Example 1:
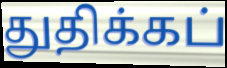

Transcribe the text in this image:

துதிக்கப்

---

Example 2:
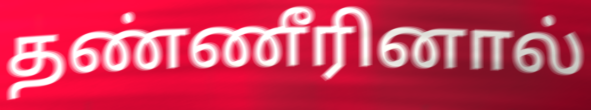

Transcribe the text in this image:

தண்ணீரினால்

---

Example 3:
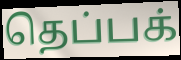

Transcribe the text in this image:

தெப்பக்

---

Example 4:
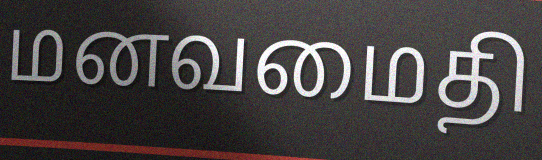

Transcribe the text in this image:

மனவமைதி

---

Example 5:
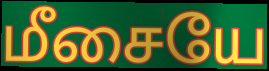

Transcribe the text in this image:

மீசையே